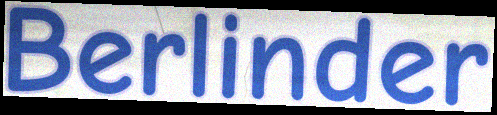
Berlinder